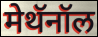
मेथॅनॉल